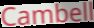
Cambell